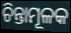
ଚିନ୍ତାମୂଳକ